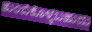
ತುಂಬಿಕೊಳ್ಳಬಹುದು